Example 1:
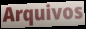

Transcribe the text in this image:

Arquivos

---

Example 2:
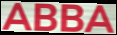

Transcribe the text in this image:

ABBA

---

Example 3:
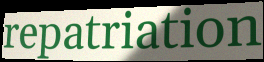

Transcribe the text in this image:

repatriation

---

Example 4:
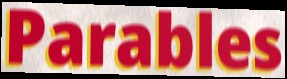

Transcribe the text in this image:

Parables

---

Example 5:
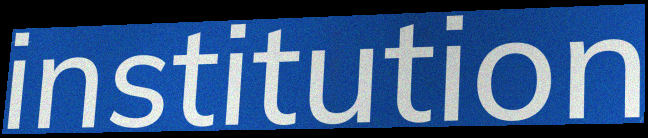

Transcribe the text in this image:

institution